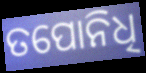
ତପୋନିଧି